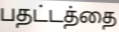
பதட்டத்தை